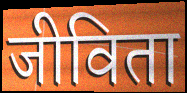
जीविता